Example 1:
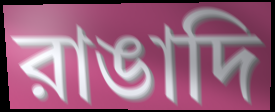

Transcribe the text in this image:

রাঙাদি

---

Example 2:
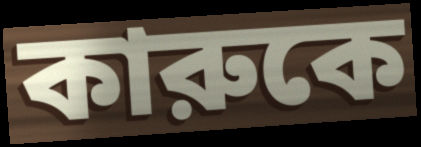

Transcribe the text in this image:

কারুকে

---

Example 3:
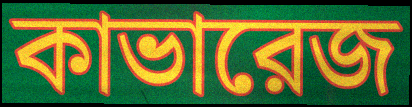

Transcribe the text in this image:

কাভারেজ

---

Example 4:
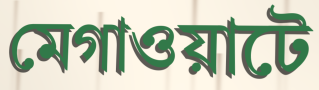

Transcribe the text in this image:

মেগাওয়াটে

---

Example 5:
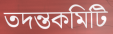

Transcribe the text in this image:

তদন্তকমিটি